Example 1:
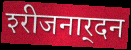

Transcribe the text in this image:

श्रीजनार्दन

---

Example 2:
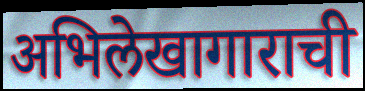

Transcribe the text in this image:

अभिलेखागाराची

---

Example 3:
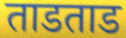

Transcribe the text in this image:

ताडताड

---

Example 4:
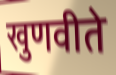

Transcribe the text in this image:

खुणवीते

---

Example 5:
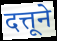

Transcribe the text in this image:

दत्तूने